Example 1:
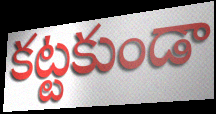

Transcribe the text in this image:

కట్టకుండా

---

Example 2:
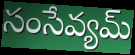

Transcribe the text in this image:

సంసేవ్యమ్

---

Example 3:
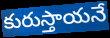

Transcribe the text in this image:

కురుస్తాయనే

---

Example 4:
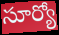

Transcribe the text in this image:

సూర్యో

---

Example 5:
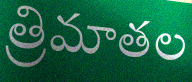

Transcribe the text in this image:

త్రిమాతల